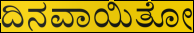
ದಿನವಾಯಿತೋ